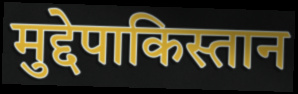
मुद्देपाकिस्तान